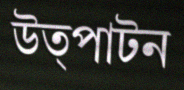
উত্পাটন